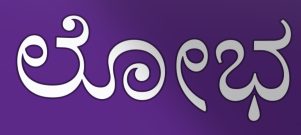
ಲೋಭ